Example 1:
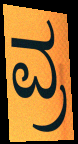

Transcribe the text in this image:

ವ್ರ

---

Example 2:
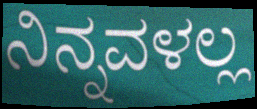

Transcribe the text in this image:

ನಿನ್ನವಳಲ್ಲ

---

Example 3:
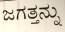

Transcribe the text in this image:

ಜಗತ್ತನ್ನು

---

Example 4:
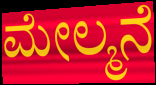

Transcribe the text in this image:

ಮೇಲ್ಮನೆ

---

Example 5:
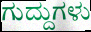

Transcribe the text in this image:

ಗುದ್ದುಗಳು